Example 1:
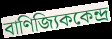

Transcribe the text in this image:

বাণিজ্যিককেন্দ্র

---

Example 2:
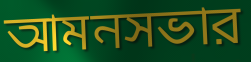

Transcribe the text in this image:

আমনসভার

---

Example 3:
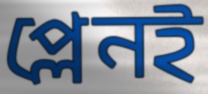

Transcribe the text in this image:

প্লেনই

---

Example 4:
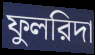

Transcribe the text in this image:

ফুলরিদা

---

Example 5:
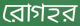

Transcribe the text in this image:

রোগহর